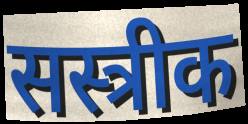
सस्त्रीक